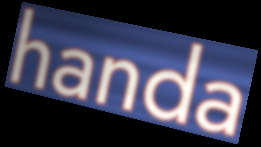
handa